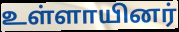
உள்ளாயினர்